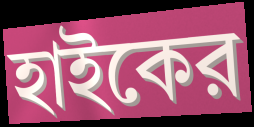
হাইকের